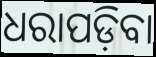
ଧରାପଡ଼ିବା